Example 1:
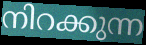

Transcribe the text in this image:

നിറക്കുന്ന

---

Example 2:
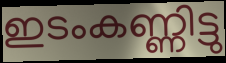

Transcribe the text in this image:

ഇടംകണ്ണിട്ടു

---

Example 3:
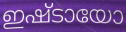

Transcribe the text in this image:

ഇഷ്ടായോ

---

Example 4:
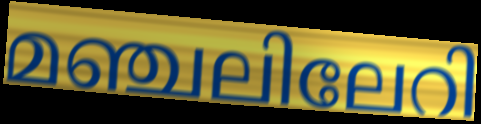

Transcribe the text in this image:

മഞ്ചലിലേറി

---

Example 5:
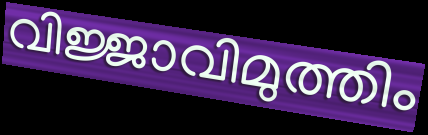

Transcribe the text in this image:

വിജ്ജാവിമുത്തിം